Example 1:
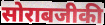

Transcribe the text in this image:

सोराबजीकी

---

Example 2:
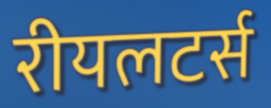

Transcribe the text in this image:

रीयलटर्स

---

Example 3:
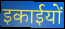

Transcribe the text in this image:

इकाईयों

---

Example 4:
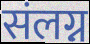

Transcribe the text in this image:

संलग्न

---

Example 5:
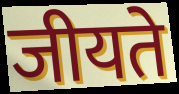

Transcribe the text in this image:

जीयते